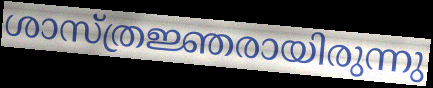
ശാസ്ത്രജ്ഞരായിരുന്നു